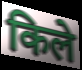
किले